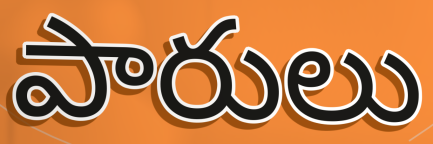
పారులు